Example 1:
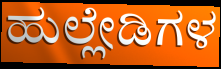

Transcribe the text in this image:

ಹುಲ್ಲೇಡಿಗಳ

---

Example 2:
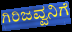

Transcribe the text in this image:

ಗಿರಿಜವ್ವನಿಗೆ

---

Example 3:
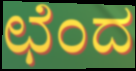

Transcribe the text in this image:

ಛೆಂದ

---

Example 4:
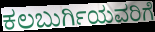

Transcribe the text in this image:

ಕಲಬುರ್ಗಿಯವರಿಗೆ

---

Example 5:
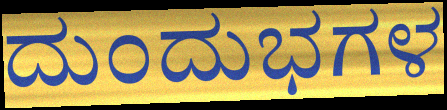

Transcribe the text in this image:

ದುಂದುಭಗಳ